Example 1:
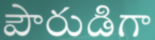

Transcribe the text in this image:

పౌరుడిగా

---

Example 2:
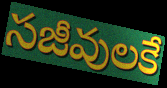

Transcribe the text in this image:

సజీవులకే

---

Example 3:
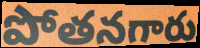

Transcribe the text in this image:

పోతనగారు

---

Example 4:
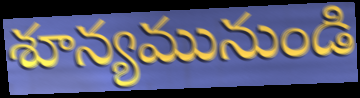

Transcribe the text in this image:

శూన్యమునుండి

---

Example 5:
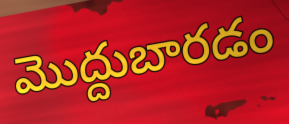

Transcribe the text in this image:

మొద్దుబారడం